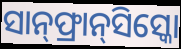
ସାନ୍‌ଫ୍ରାନ୍‌ସିସ୍କୋ